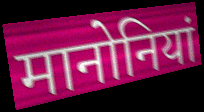
मानोनियां